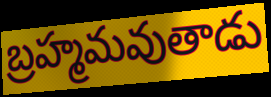
బ్రహ్మమవుతాడు